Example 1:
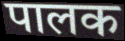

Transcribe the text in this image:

पालक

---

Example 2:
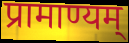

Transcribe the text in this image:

प्रामाण्यम्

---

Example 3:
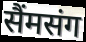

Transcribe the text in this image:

सैंमसंग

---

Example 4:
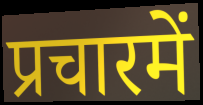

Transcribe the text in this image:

प्रचारमें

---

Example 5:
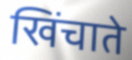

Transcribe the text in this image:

खिंचाते